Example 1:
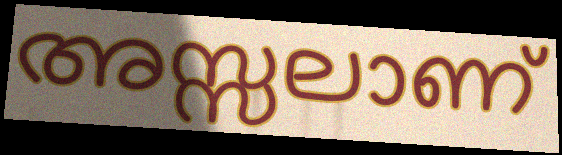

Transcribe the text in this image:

അസ്സലാണ്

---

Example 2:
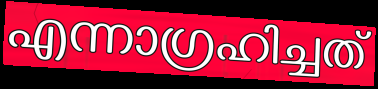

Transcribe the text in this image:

എന്നാഗ്രഹിച്ചത്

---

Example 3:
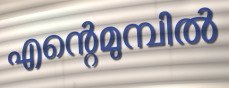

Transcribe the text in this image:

എന്റെമുമ്പിൽ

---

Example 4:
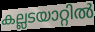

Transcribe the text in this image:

കല്ലടയാറ്റിൽ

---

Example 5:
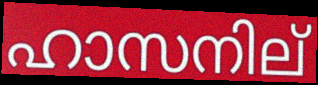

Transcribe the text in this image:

ഹാസനില്